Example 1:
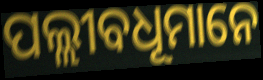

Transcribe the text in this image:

ପଲ୍ଲୀବଧୂମାନେ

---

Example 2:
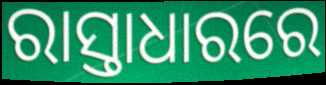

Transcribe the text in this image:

ରାସ୍ତାଧାରରେ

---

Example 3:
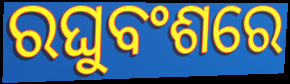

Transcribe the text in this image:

ରଘୁବଂଶରେ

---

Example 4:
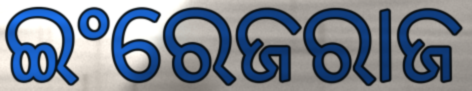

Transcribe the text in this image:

ଇଂରେଜରାଜ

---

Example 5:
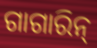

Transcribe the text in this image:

ଗାଗାରିନ୍